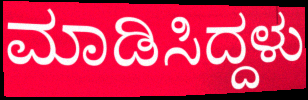
ಮಾಡಿಸಿದ್ದಳು